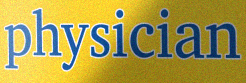
physician